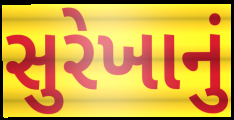
સુરેખાનું